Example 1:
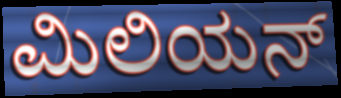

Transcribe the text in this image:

ಮಿಲಿಯನ್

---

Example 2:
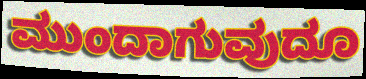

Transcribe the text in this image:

ಮುಂದಾಗುವುದೂ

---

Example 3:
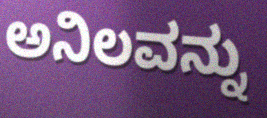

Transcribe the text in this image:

ಅನಿಲವನ್ನು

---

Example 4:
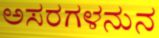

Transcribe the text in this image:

ಅಸರಗಳನುನ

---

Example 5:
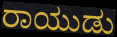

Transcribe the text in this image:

ರಾಯುಡು